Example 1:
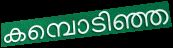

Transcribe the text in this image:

കമ്പൊടിഞ്ഞ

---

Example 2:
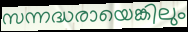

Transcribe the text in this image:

സന്നദ്ധരായെങ്കിലും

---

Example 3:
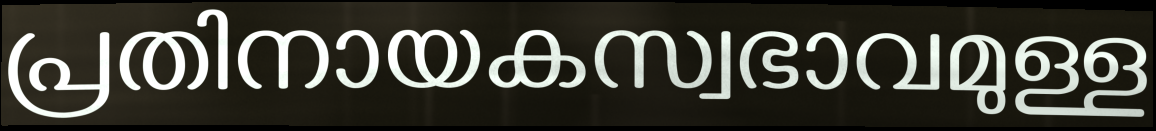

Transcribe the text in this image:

പ്രതിനായകസ്വഭാവമുള്ള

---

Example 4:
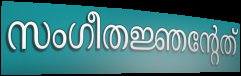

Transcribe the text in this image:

സംഗീതജ്ഞന്റേത്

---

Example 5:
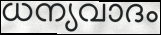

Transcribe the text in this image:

ധന്യവാദം